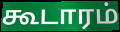
கூடாரம்